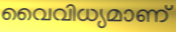
വൈവിധ്യമാണ്